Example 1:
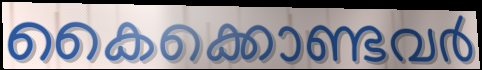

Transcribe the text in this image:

കൈക്കൊണ്ടവർ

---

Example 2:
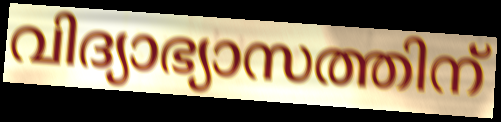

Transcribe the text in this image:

വിദ്യാഭ്യാസത്തിന്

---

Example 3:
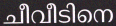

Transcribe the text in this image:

ചീവീടിനെ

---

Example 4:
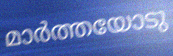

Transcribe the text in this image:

മാർത്തയോടു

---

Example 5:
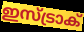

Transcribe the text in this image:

ഇസ്ട്രാക്